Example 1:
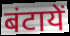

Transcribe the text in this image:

बंटायें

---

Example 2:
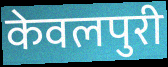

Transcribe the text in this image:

केवलपुरी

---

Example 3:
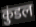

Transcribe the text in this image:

कुंडल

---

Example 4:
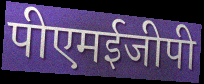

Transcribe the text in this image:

पीएमईजीपी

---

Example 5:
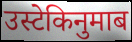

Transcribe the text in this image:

उस्टेकिनुमाब